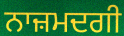
ਨਾਜ਼ਮਦਗੀ